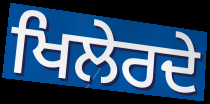
ਖਿਲੇਰਦੇ